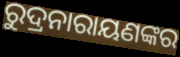
ରୁଦ୍ରନାରାୟଣଙ୍କର